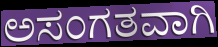
ಅಸಂಗತವಾಗಿ